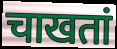
चाखतां